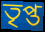
তৃপ্ত